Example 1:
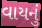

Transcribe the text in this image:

વાયનું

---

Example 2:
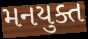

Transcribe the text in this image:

મનયુક્ત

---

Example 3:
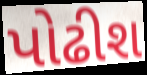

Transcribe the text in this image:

પોઢીશ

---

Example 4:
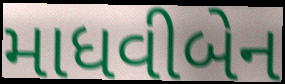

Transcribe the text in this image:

માધવીબેન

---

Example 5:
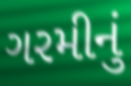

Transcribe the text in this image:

ગરમીનું